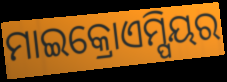
ମାଇକ୍ରୋଏମ୍ପିୟର